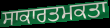
ਸਾਕਾਰਤਮਕਤਾ